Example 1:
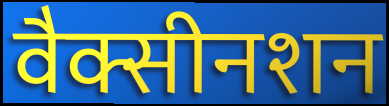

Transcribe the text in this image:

वैक्सीनशन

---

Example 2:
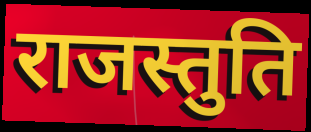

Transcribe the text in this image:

राजस्तुति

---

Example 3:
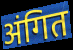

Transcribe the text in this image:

अंगित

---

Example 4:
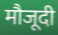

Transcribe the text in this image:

मौजूदी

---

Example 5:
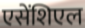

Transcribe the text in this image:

एसेंशिएल